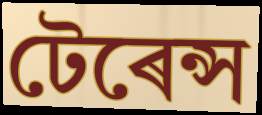
টেৰেন্স